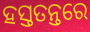
ହସ୍ତତନ୍ତରେ